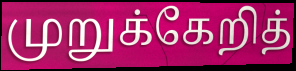
முறுக்கேறித்